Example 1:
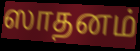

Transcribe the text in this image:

ஸாதனம்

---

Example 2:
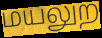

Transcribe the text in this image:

மயலுற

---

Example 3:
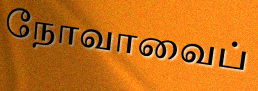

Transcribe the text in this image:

நோவாவைப்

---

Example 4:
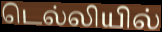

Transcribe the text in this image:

டெல்லியில்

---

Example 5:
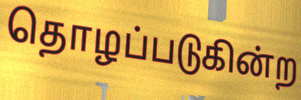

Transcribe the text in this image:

தொழப்படுகின்ற